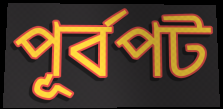
পূর্বপট